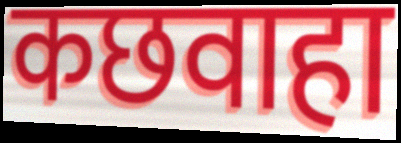
कछवाहा